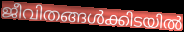
ജീവിതങ്ങൾക്കിടയിൽ